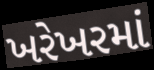
ખરેખરમાં